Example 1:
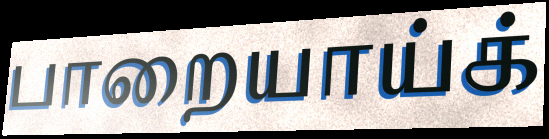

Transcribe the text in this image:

பாறையாய்க்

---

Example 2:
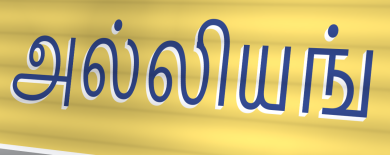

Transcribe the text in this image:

அல்லியங்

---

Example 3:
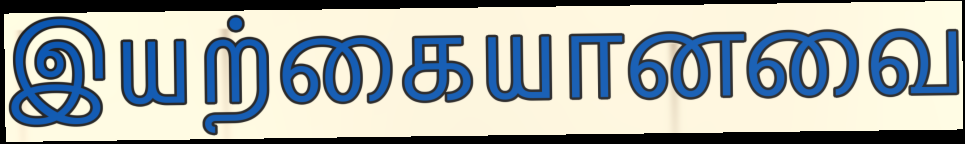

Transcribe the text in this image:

இயற்கையானவை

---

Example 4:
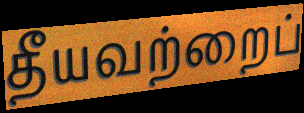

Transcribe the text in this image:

தீயவற்றைப்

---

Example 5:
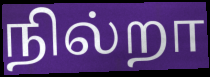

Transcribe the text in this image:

நில்றா